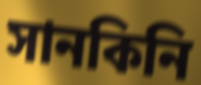
সানকিনি